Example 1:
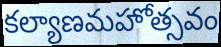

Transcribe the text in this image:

కల్యాణమహోత్సవం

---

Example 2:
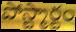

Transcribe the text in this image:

పోస్ట్మార్టం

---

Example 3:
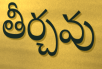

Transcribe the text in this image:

తీర్చవు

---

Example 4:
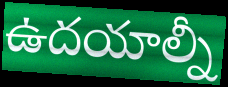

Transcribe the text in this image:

ఉదయాల్నీ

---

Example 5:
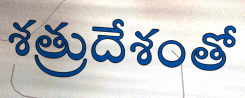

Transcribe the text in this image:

శత్రుదేశంతో